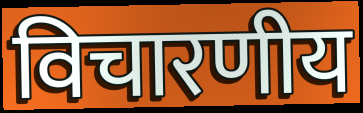
विचारणीय